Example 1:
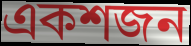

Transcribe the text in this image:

একশজন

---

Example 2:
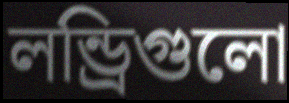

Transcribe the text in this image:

লন্ড্রিগুলো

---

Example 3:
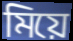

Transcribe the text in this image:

মিয়ে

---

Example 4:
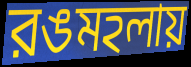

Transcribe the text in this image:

রঙমহলায়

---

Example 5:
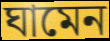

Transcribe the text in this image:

ঘামেন